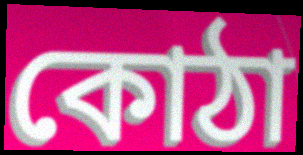
কোঠা